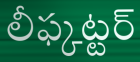
లీఫ్కట్టర్